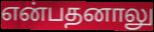
என்பதனாலு